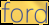
ford